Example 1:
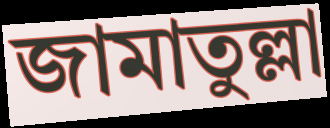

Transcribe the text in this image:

জামাতুল্লা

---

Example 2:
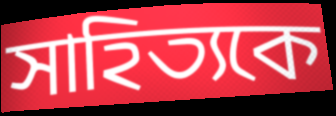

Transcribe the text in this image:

সাহিত্যকে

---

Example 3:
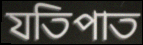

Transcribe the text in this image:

যতিপাত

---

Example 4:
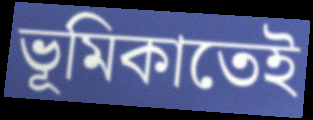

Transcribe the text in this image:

ভূমিকাতেই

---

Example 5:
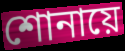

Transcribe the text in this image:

শোনায়ে